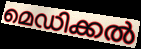
മെഡിക്കൽ